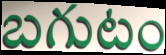
బగుటం